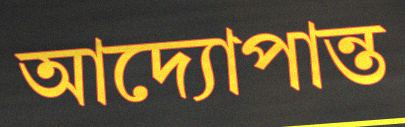
আদ্যোপান্ত